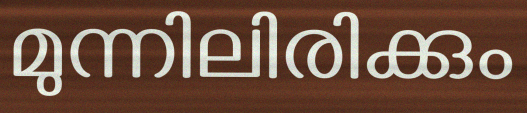
മുന്നിലിരിക്കും